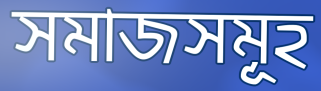
সমাজসমূহ